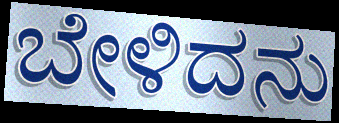
ಬೇಳಿದನು